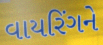
વાયરિંગને